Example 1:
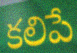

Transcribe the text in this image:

కలిపే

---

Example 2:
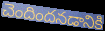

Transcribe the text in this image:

చెందిందనడానికి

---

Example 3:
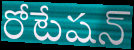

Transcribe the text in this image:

రోటేషన్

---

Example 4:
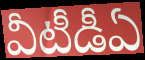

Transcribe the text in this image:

వీటీడీఏ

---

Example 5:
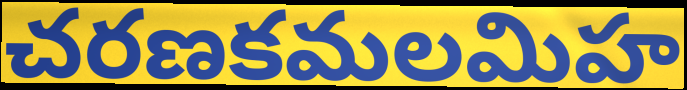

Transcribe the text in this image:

చరణకమలమిహ